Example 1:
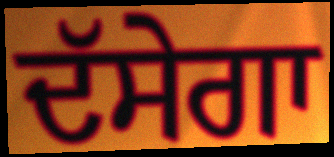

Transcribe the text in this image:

ਦੱਸੇਗਾ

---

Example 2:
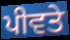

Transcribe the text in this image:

ਪੀਵਤੇ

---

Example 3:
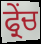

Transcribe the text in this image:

ਫ੍ਰੇਂਚ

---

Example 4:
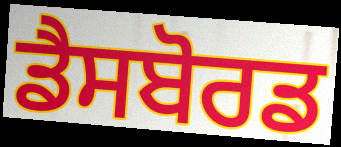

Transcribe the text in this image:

ਡੈਸਬੋਰਡ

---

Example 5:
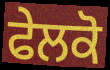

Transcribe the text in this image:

ਫੇਲਕੋ